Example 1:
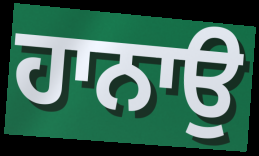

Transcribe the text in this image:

ਹਾਨਾਉ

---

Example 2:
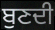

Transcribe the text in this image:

ਬੁਣਦੀ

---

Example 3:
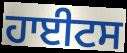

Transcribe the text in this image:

ਹਾਈਟਸ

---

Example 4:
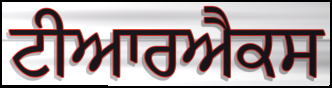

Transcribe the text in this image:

ਟੀਆਰਐਕਸ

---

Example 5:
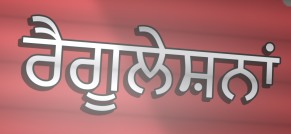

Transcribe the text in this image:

ਰੈਗੂਲੇਸ਼ਨਾਂ